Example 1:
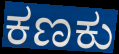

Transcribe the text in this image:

ಕಣಕು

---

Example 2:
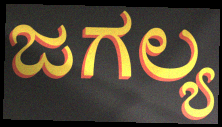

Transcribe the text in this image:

ಜಗಲ್ಯ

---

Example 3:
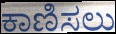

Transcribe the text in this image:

ಕಾಣಿಸಲು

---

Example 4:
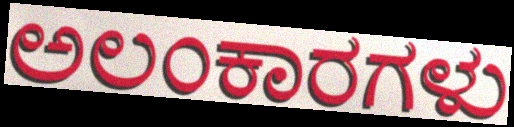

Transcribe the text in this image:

ಅಲಂಕಾರಗಳು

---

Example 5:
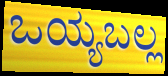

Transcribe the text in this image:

ಒಯ್ಯಬಲ್ಲ